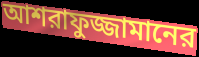
আশরাফুজ্জামানের